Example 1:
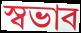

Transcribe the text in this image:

স্বভাব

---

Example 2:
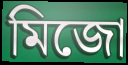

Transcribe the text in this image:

মিজো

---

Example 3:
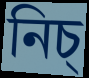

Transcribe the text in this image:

নিচ্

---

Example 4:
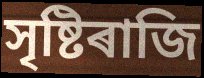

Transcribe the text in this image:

সৃষ্টিৰাজি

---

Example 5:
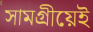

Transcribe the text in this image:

সামগ্ৰীয়েই